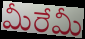
మీరేమీ